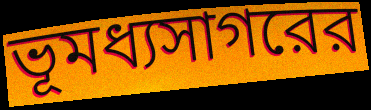
ভূমধ্যসাগরের